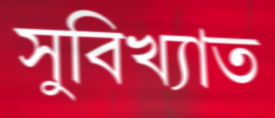
সুবিখ্যাত